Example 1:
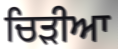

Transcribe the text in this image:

ਚਿੜੀਆ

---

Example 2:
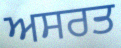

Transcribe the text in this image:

ਅਸਰਤ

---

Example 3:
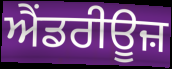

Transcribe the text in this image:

ਐਂਡਰੀਊਜ਼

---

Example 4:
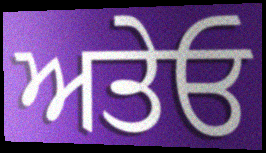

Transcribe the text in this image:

ਅਤੇਓ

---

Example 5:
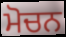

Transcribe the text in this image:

ਮੋਚਨ